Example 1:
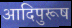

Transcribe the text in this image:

आदिपुरूष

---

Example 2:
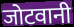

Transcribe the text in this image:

जोटवानी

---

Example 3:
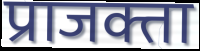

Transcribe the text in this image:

प्राजक्ता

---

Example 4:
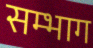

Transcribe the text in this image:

सम्भाग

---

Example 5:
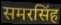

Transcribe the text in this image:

समरसिंह